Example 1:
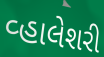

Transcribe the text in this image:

વ્હાલેશરી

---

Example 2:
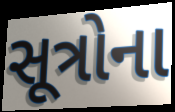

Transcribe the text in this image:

સૂત્રોના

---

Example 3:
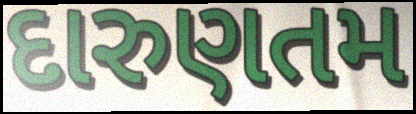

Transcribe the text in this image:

દારુણતમ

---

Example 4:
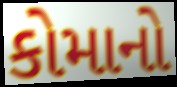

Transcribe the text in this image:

કોમાનો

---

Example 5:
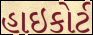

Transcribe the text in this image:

હાઇકોર્ટ